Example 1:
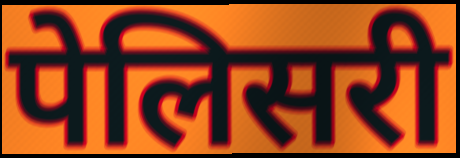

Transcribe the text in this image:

पेलिसरी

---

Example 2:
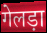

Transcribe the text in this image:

गेलड़ा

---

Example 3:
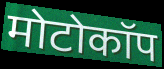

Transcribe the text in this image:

मोटोकॉप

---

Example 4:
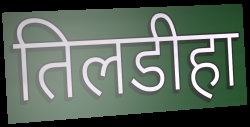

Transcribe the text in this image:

तिलडीहा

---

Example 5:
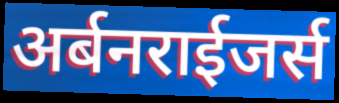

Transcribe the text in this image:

अर्बनराईजर्स